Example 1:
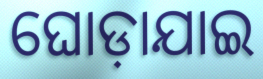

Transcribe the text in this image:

ଘୋଡ଼ାଯାଇ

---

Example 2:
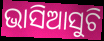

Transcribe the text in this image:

ଭାସିଆସୁଚି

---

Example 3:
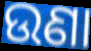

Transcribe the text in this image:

ଉଣା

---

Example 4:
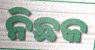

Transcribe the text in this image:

ନିଛକ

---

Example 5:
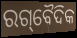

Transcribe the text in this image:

ରଗ୍‌ବୈଦିକ